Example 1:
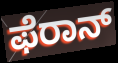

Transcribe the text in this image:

ಫೆರಾನ್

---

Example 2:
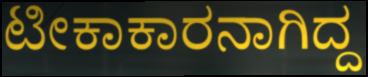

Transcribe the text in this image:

ಟೀಕಾಕಾರನಾಗಿದ್ದ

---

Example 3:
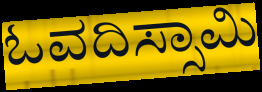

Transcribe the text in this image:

ಓವದಿಸ್ಸಾಮಿ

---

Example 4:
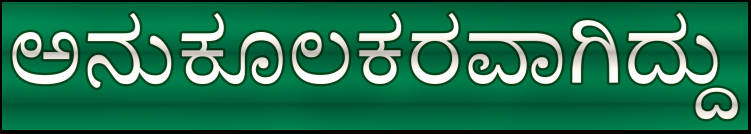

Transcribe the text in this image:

ಅನುಕೂಲಕರವಾಗಿದ್ದು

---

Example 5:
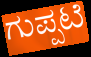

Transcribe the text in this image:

ಗುಪ್ಪಟೆ